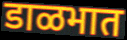
डाळभात